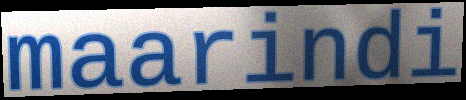
maarindi